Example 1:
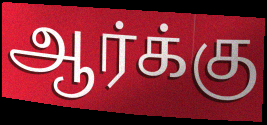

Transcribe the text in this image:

ஆர்க்கு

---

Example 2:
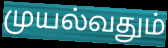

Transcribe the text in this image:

முயல்வதும்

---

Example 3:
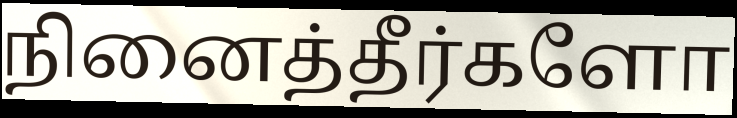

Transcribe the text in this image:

நினைத்தீர்களோ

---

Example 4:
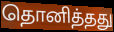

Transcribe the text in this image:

தொனித்தது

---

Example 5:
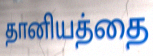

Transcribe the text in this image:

தானியத்தை